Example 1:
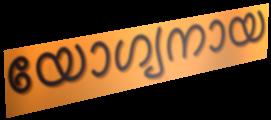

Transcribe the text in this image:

യോഗ്യനായ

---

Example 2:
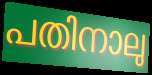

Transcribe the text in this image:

പതിനാലു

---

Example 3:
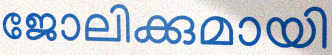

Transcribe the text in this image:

ജോലിക്കുമായി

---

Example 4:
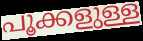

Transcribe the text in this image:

പൂക്കളുള്ള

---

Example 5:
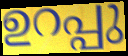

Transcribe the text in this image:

ഉറപ്പു